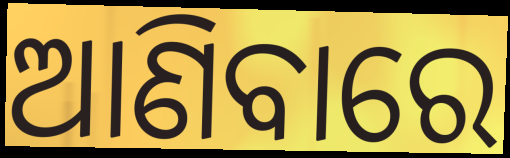
ଆଣିବାରେ